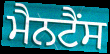
ਮੈਨਟੈਂਸ